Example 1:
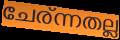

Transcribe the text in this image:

ചേര്ന്നതല്ല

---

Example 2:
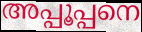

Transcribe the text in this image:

അപ്പൂപ്പനെ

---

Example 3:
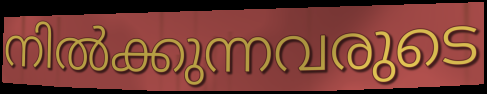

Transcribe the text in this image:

നിൽക്കുന്നവരുടെ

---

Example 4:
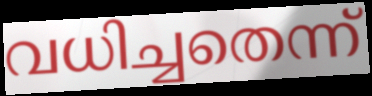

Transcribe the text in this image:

വധിച്ചതെന്ന്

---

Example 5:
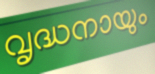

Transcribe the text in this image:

വൃദ്ധനായും